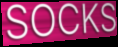
SOCKS